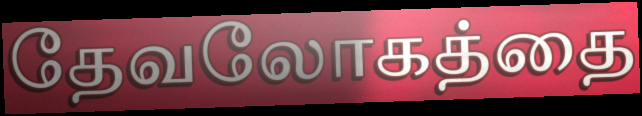
தேவலோகத்தை